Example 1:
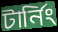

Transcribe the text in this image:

টার্নিং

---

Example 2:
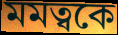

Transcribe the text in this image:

মমত্বকে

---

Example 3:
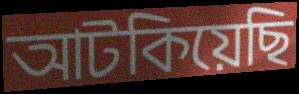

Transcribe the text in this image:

আটকিয়েছি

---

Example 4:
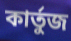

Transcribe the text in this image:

কার্তুজ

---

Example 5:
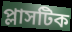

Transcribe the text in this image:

প্লাসটিক